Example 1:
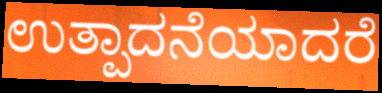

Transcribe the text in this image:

ಉತ್ಪಾದನೆಯಾದರೆ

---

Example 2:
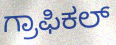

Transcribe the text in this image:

ಗ್ರಾಫಿಕಲ್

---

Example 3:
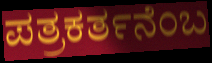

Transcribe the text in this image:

ಪತ್ರಕರ್ತನೆಂಬ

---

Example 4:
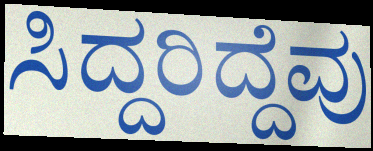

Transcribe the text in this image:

ಸಿದ್ದರಿದ್ದೆವು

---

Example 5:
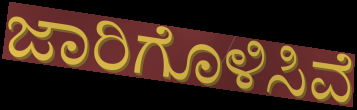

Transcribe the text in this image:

ಜಾರಿಗೊಳಿಸಿವೆ